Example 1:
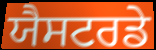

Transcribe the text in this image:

ਯੈਸਟਰਡੇ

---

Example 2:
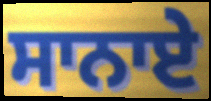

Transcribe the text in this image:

ਸਾਨਾਏ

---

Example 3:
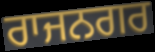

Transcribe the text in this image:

ਰਾਜਨਗਰ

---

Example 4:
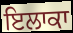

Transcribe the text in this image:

ਇਲਾਕਾ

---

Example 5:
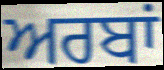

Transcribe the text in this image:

ਅਰਬਾਂ